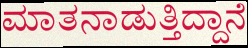
ಮಾತನಾಡುತ್ತಿದ್ದಾನೆ